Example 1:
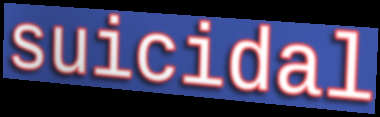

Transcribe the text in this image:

suicidal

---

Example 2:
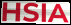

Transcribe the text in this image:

HSIA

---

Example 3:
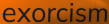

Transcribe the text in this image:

exorcism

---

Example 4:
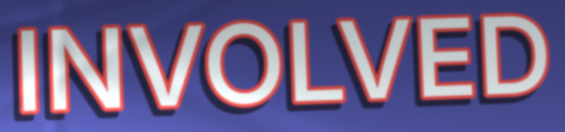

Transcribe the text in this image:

INVOLVED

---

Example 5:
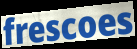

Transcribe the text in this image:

frescoes